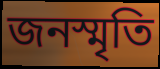
জনস্মৃতি